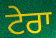
ਟੇਰਾ